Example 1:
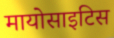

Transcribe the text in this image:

मायोसाइटिस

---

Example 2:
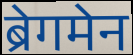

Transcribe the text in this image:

ब्रेगमेन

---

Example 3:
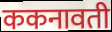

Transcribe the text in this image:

ककनावती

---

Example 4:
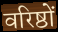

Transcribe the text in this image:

वरिष्ठों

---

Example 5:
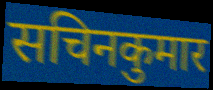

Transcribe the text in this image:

सचिनकुमार